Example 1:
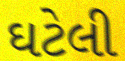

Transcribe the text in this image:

ઘટેલી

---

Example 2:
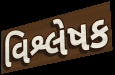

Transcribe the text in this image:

વિશ્લેષક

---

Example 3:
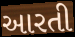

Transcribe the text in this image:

આરતી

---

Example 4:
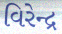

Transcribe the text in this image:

વિરેન્દ્ર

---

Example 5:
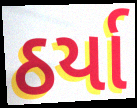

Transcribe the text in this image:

ઠર્યા